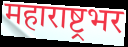
महाराष्ट्रभर